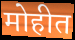
मोहीत